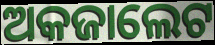
ଅକଜାଲେଟ